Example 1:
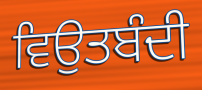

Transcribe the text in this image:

ਵਿਉਤਬੰਦੀ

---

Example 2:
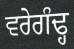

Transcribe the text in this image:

ਵਰੇਗੰਢ੍ਹ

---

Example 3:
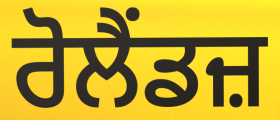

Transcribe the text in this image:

ਰੋਲੈਂਡਜ਼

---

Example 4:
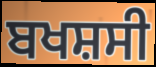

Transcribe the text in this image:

ਬਖਸ਼ਸੀ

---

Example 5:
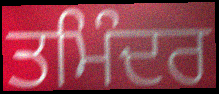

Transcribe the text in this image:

ਤਮਿੰਦਰ